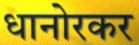
धानोरकर